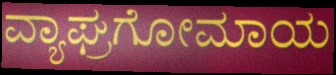
ವ್ಯಾಘ್ರಗೋಮಾಯ